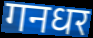
गनधर